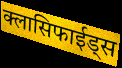
क्लासिफाईड्स